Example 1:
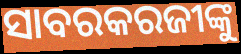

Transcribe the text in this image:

ସାବରକରଜୀଙ୍କୁ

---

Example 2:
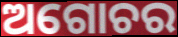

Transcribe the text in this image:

ଅଗୋଚର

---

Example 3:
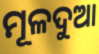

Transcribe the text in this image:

ମୂଳଦୁଆ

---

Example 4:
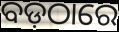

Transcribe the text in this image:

ବଡ଼ଠାରେ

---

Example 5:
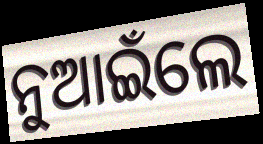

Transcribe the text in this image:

ନୁଆଇଁଲେ